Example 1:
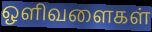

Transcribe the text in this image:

ஒளிவளைகள்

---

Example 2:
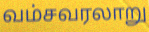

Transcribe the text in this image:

வம்சவரலாறு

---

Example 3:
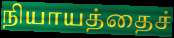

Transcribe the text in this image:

நியாயத்தைச்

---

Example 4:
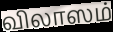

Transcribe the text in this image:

விலாஸம்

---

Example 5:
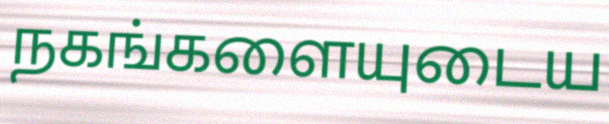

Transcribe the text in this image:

நகங்களையுடைய